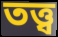
তত্ত্ব